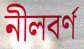
নীলবর্ণ